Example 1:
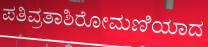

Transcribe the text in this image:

ಪತಿವ್ರತಾಶಿರೋಮಣಿಯಾದ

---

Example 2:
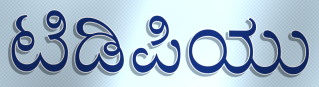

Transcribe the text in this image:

ಟಿಡಿಪಿಯು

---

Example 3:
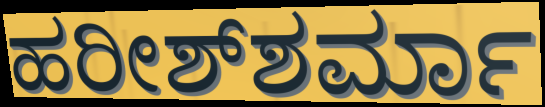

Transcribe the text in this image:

ಹರೀಶ್‌ಶರ್ಮಾ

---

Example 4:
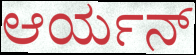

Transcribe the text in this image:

ಆರ್ಯನ್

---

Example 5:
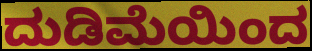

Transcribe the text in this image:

ದುಡಿಮೆಯಿಂದ